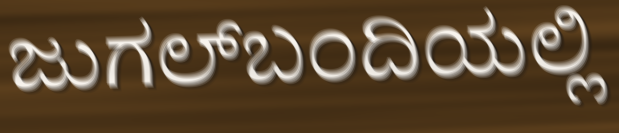
ಜುಗಲ್‌ಬಂದಿಯಲ್ಲಿ